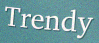
Trendy